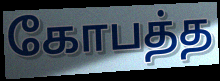
கோபத்த